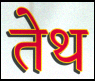
तेथ